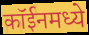
कॉईनमध्ये